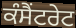
ਕੰਸੈਂਟਰੇਟ